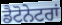
ਡੈਟੋਨੇਟਰਾਂ